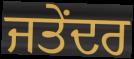
ਜਤੇਂਦਰ